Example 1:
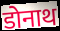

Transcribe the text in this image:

डोनाथ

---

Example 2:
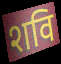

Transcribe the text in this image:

शवि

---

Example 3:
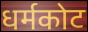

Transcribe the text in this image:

धर्मकोट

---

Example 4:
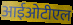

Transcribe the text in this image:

आईओटीएल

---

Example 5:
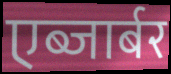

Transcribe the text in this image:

एब्जार्बर